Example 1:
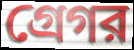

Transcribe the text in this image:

গ্রেগর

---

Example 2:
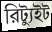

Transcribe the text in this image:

রিট্যুইট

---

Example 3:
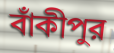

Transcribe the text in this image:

বাঁকীপুর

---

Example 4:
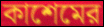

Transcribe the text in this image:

কাশেমের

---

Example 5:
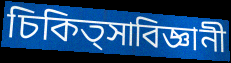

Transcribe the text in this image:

চিকিত্সাবিজ্ঞানী